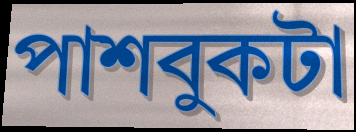
পাশবুকটা